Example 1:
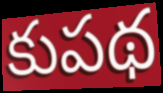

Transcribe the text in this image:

కుపథ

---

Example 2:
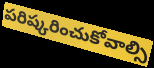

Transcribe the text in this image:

పరిష్కరించుకోవాల్సి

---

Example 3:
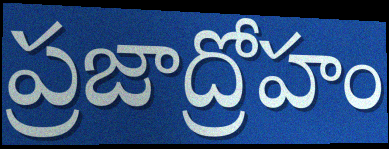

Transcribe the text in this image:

ప్రజాద్రోహం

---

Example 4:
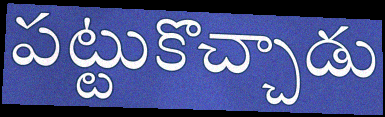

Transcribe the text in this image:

పట్టుకొచ్చాడు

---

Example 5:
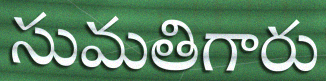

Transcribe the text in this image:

సుమతిగారు